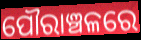
ପୌରାଞ୍ଚଳରେ